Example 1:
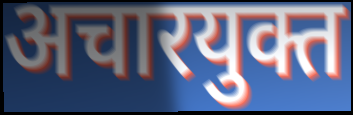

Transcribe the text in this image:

अचारयुक्त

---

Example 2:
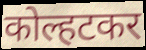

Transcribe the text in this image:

कोल्हटकर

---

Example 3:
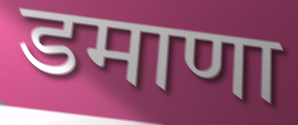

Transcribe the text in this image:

डमाणा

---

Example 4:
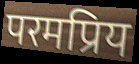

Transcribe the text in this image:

परमप्रिय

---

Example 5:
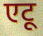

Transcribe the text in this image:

एटू